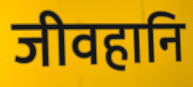
जीवहानि